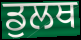
ਡੁਲਥ